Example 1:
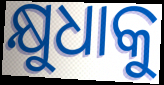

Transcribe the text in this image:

କ୍ଷୁଧାକୁ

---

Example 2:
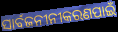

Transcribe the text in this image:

ସାର୍ବଜନୀନୀକରଣପାଇଁ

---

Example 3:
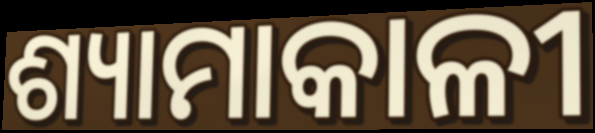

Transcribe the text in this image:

ଶ୍ୟାମାକାଳୀ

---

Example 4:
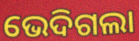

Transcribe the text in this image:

ଭେଦିଗଲା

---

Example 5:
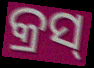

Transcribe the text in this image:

କ୍ରସ୍